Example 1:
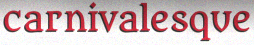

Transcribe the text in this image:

carnivalesque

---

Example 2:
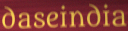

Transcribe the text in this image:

daseindia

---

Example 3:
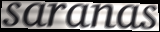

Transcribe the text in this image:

saranas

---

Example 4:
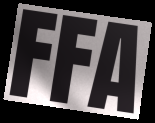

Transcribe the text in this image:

FFA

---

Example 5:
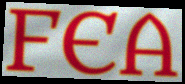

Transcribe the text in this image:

FEA